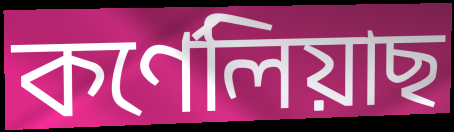
কৰ্ণেলিয়াছ